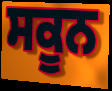
ਸਕੂਨ